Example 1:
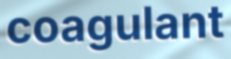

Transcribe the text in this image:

coagulant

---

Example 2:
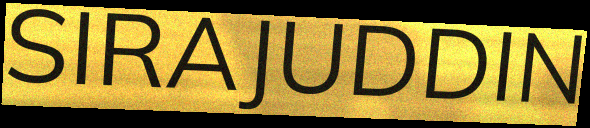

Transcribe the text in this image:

SIRAJUDDIN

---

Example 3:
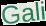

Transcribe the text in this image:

Gali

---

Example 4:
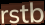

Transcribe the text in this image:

rstb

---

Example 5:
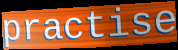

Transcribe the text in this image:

practise